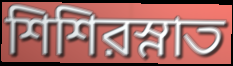
শিশিরস্নাত